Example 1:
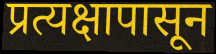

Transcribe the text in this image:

प्रत्यक्षापासून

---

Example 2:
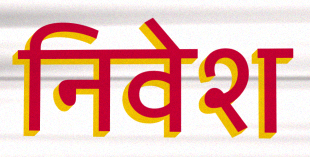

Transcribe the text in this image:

निवेश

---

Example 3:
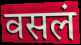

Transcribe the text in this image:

वसलं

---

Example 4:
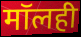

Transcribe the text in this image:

मॉलही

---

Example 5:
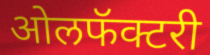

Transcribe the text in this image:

ओलफॅक्टरी